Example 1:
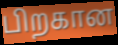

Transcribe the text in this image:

பிறகான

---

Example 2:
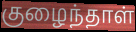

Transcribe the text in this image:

குழைந்தாள்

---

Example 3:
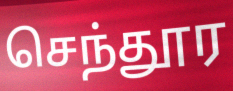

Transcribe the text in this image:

செந்தூர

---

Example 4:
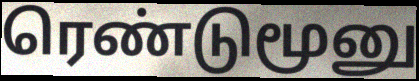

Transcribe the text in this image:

ரெண்டுமூனு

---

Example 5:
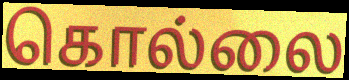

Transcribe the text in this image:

கொல்லை